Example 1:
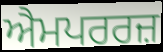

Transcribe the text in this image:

ਐਮਪਰਰਜ਼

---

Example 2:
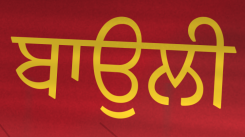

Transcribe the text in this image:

ਬਾਉਲੀ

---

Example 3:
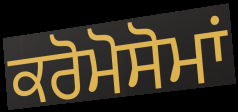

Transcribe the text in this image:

ਕਰੋਮੋਸੋਮਾਂ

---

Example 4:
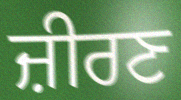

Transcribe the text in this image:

ਜ਼ੀਰਣ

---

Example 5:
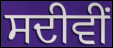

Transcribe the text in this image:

ਸਦੀਵੀਂ